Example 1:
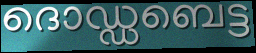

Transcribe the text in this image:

ദൊഡ്ഡബെട്ട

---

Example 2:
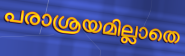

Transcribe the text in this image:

പരാശ്രയമില്ലാതെ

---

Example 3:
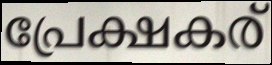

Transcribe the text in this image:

പ്രേക്ഷകര്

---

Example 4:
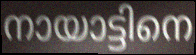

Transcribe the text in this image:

നായാട്ടിനെ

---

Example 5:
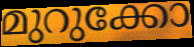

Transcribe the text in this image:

മുറുക്കോ